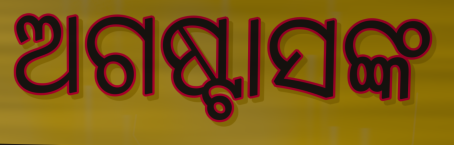
ଅଗଷ୍ଟାସଙ୍କ